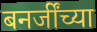
बनर्जींच्या